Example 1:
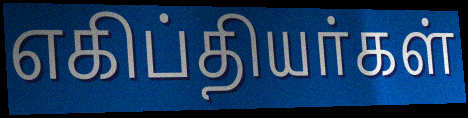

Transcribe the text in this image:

எகிப்தியர்கள்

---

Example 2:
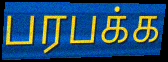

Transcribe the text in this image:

பரபக்க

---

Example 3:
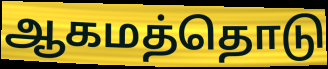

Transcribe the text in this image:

ஆகமத்தொடு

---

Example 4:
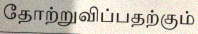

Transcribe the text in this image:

தோற்றுவிப்பதற்கும்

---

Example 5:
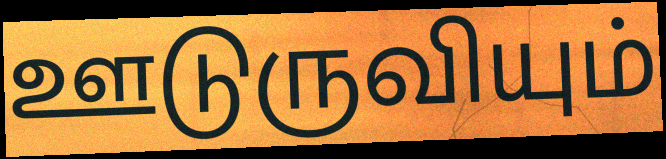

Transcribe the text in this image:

ஊடுருவியும்